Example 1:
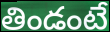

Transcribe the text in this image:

తిండంటే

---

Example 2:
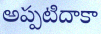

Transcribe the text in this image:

అప్పటిదాకా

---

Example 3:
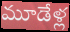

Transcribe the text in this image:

మూడేళ్ల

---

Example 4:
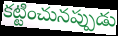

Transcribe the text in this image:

కట్టించునప్పుడు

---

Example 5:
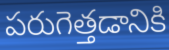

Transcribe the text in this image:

పరుగెత్తడానికి